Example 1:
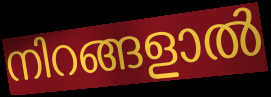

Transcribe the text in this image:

നിറങ്ങളാൽ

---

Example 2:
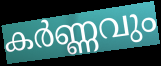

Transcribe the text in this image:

കർണ്ണവും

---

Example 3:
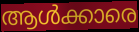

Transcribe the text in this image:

ആൾക്കാരെ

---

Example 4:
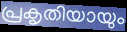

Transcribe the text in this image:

പ്രകൃതിയായും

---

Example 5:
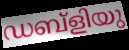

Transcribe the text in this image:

ഡബ്ളിയു